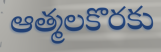
ఆత్మలకొరకు